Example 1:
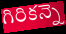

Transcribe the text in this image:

గిరికన్నె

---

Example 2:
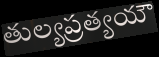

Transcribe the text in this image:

తుల్యప్రత్యయౌ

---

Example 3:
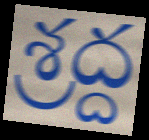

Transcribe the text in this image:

శ్రద్ద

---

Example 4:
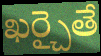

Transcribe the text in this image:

ఖర్చైతే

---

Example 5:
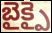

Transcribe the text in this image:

బైక్పై